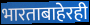
भारताबाहेरही